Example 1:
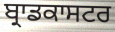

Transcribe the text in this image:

ਬ੍ਰਾਡਕਾਸਟਰ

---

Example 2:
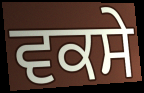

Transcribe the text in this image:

ਵਕਸੇ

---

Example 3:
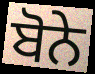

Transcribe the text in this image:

ਬੋਨੇ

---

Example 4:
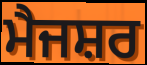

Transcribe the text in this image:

ਮੈਜਸ਼ਰ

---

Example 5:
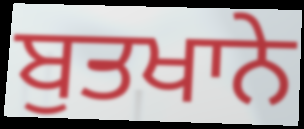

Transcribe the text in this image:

ਬੁਤਖਾਨੇ